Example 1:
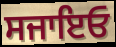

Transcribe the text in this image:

ਸਜਾਇਓ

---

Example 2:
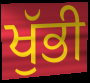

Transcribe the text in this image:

ਖੁੱਭੀ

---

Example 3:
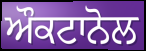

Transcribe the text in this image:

ਔਕਟਾਨੋਲ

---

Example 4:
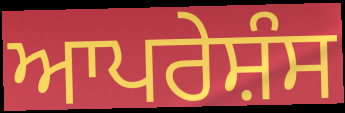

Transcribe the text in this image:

ਆਪਰੇਸ਼ੰਸ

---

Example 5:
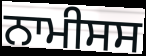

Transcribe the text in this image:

ਨਾਮੀਸਸ